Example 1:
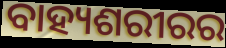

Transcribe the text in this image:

ବାହ୍ୟଶରୀରର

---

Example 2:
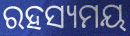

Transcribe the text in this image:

ରହସ୍ୟମୟ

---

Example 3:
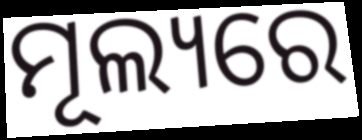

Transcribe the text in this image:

ମୂଲ୍ୟରେ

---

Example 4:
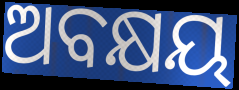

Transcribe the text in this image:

ଅବକ୍ଷୟ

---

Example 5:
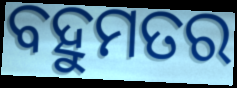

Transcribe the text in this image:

ବହୁମତର